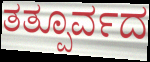
ತತ್ಪೂರ್ವದ